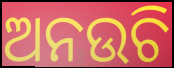
ଅନଉଚି